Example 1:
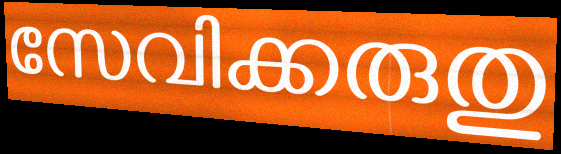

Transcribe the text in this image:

സേവിക്കരുതു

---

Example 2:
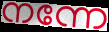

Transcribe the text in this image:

നന്നേ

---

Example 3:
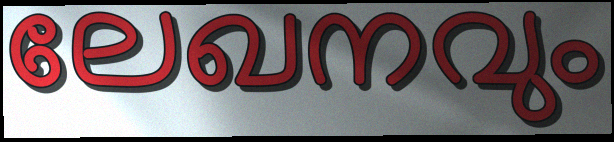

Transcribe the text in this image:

ലേഖനവും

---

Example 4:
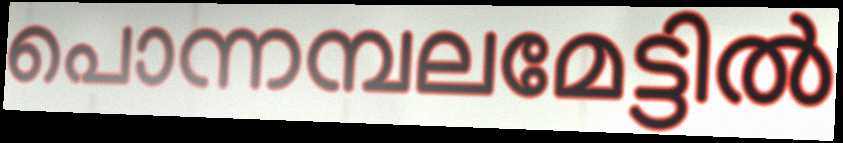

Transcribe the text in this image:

പൊന്നമ്പലമേട്ടിൽ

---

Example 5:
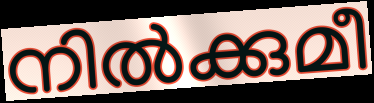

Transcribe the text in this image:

നിൽക്കുമീ